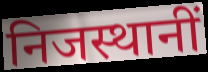
निजस्थानीं